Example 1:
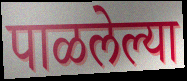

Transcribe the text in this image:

पाळलेल्या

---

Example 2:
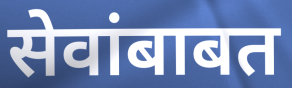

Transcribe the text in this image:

सेवांबाबत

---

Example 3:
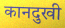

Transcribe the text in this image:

कानदुखी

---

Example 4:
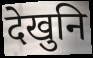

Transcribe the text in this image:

देखुनि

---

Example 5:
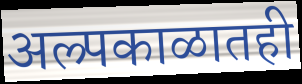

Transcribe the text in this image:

अल्पकाळातही